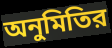
অনুমিতির